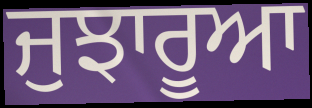
ਜੁਝਾਰੂਆ